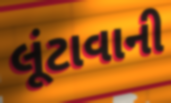
લૂંટાવાની